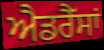
ਐਡਰੈੱਸਾਂ